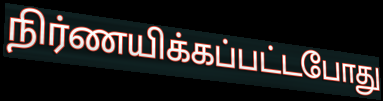
நிர்ணயிக்கப்பட்டபோது